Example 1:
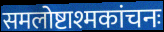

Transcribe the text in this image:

समलोष्टाश्मकांचनः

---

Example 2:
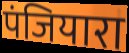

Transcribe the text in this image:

पंजियारा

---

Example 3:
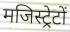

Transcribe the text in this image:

मजिस्ट्रेटों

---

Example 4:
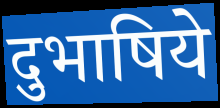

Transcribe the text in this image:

दुभाषिये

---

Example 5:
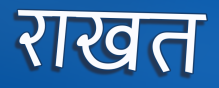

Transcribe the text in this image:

राखत